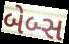
બેબ્સ